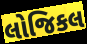
લોજિકલ